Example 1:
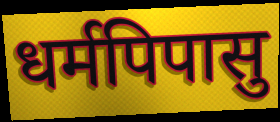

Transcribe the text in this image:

धर्मपिपासु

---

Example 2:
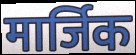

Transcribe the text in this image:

मार्जिक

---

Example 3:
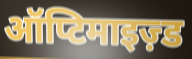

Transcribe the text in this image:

ऑप्टिमाइज़्ड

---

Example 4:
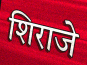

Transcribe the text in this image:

शिराजे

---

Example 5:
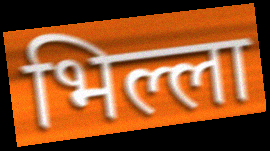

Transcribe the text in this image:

भिल्ला